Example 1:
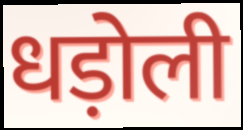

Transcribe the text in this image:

धड़ोली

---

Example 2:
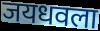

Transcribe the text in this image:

जयधवला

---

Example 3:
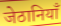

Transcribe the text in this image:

जेठानियाँ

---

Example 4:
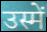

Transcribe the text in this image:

उस्में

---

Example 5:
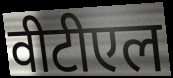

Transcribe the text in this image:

वीटीएल